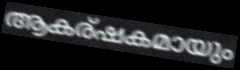
ആകര്ഷകമായും